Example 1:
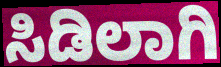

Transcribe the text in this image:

ಸಿಡಿಲಾಗಿ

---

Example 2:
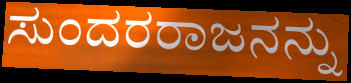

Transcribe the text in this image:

ಸುಂದರರಾಜನನ್ನು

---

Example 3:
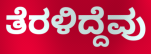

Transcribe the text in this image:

ತೆರಳಿದ್ದೆವು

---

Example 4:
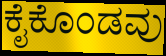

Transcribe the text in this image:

ಕೈಕೊಂಡವು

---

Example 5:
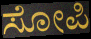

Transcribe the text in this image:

ಸೋಪಿ